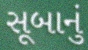
સૂબાનું